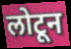
लोटून